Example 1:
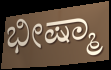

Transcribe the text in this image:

ಭೀಷ್ಮಾ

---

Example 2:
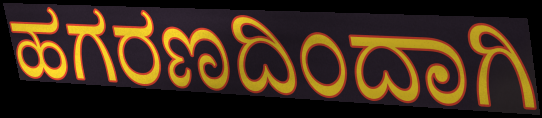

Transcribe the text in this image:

ಹಗರಣದಿಂದಾಗಿ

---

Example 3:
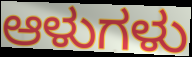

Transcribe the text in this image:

ಆಳುಗಳು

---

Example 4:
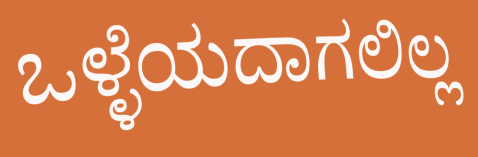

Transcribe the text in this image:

ಒಳ್ಳೆಯದಾಗಲಿಲ್ಲ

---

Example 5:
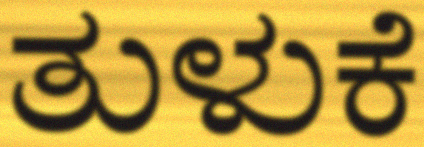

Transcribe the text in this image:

ತುಳುಕೆ